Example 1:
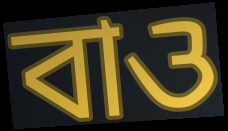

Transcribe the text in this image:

বাও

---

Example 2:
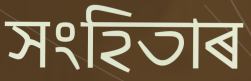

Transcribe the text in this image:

সংহিতাৰ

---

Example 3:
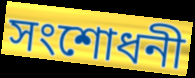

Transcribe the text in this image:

সংশোধনী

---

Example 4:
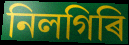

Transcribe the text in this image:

নিলগিৰি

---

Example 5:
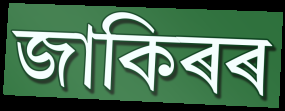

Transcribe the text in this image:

জাকিৰৰ